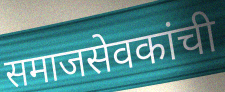
समाजसेवकांची